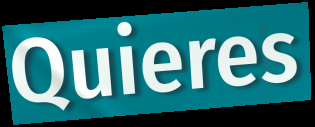
Quieres